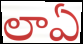
లాఏ